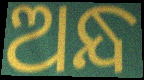
ଅନ୍ଧ